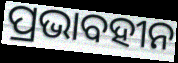
ପ୍ରଭାବହୀନ